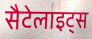
सैटेलाइट्स